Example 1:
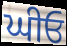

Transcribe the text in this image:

ਘੀਓ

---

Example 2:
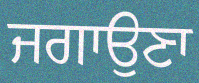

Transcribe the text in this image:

ਜਗਾਉਣਾ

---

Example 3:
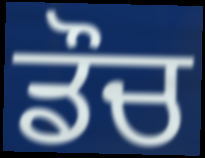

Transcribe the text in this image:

ਡੌਚ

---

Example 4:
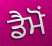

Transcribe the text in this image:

ਡੈਮੋਂ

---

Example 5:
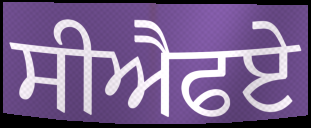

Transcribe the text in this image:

ਸੀਐਫਏ